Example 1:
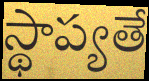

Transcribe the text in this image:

స్థాప్యతే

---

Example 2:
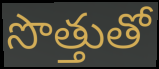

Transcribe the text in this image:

సొత్తుతో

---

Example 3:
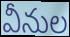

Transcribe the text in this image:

వీనుల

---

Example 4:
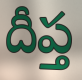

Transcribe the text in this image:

దీప్త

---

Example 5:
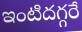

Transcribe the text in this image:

ఇంటిదగ్గరే